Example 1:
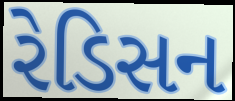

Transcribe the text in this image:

રેડિસન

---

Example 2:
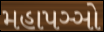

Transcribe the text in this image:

મહાપઞ્ઞો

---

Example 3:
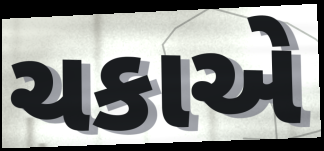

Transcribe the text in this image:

ચકાએ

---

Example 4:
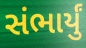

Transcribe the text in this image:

સંભાર્યું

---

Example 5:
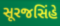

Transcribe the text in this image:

સૂરજસિંહે